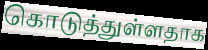
கொடுத்துள்ளதாக